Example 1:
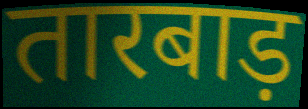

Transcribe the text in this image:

तारबाड़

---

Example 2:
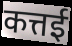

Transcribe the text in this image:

कत्तई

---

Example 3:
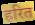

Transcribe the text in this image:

हरित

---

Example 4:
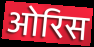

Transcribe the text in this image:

ओरिस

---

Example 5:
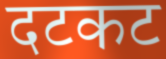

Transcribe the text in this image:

दटकट